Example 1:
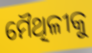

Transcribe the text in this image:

ମୈଥିଳୀକୁ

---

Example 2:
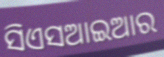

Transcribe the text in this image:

ସିଏସଆଇଆର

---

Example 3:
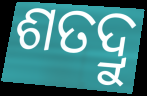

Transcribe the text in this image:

ଶତଦ୍ରୁ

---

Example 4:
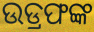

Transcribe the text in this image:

ଉଡ୍ରଫଙ୍କ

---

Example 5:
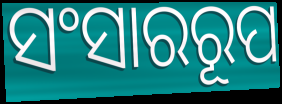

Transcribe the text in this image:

ସଂସାରରୂପ